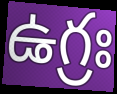
ఉగ్రః